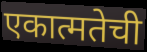
एकात्मतेची